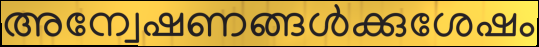
അന്വേഷണങ്ങൾക്കുശേഷം